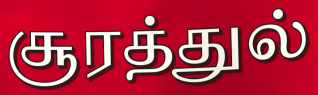
சூரத்துல்